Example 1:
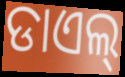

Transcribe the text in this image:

ଡାଏଲ୍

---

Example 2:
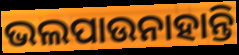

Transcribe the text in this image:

ଭଲପାଉନାହାନ୍ତି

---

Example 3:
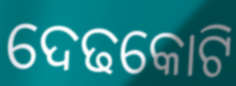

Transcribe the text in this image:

ଦେଢକୋଟି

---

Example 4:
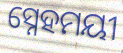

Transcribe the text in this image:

ସ୍ନେହମୟୀ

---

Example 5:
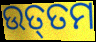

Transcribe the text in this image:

ଉତ୍‌ତମ